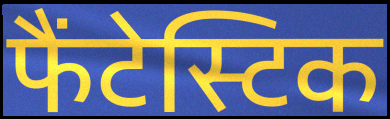
फैंटेस्टिक